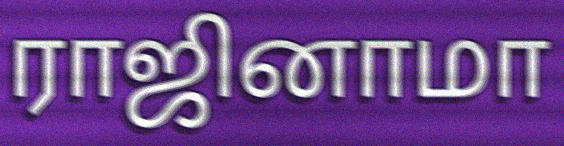
ராஜினாமா